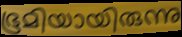
ഭൂമിയായിരുന്നു